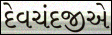
દેવચંદજીએ